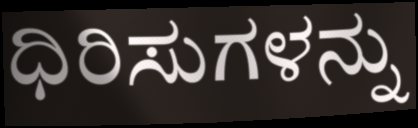
ಧಿರಿಸುಗಳನ್ನು